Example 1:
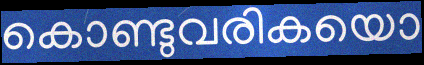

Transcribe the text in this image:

കൊണ്ടുവരികയൊ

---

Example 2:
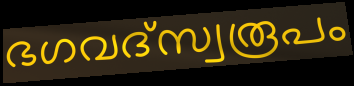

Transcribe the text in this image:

ഭഗവദ്സ്വരൂപം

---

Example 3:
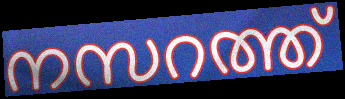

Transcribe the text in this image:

നസറത്ത്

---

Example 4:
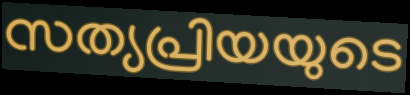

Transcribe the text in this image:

സത്യപ്രിയയുടെ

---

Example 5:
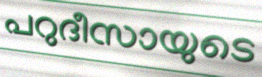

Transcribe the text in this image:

പറുദീസായുടെ